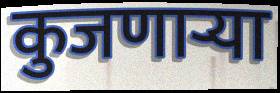
कुजणाऱ्या